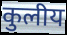
कुलीय